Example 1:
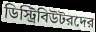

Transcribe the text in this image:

ডিস্ট্রিবিউটরদের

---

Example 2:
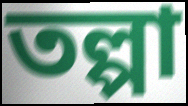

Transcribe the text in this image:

তল্পা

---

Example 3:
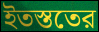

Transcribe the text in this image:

ইতস্ততের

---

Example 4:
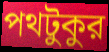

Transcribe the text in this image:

পথটুকুর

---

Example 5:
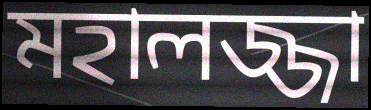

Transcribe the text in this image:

মহালজ্জা